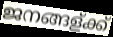
ജനങ്ങള്ക്ക്